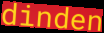
dinden